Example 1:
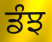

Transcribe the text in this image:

ਡੰਝ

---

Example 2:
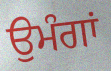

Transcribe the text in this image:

ਉਮੰਗਾਂ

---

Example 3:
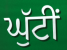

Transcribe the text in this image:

ਘੁੱਟੀਂ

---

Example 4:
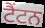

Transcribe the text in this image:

ਟੈਂਟਨ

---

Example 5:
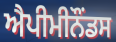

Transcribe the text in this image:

ਐਪੀਮੀਨੌਂਡਸ